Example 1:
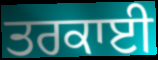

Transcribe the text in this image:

ਤਰਕਾਈ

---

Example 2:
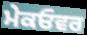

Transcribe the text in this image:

ਮੇਕਓਵਰ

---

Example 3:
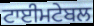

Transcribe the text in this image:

ਟਾਈਮਟੇਬਲ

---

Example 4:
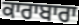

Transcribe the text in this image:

ਕਾਰਾਬਾਰਾ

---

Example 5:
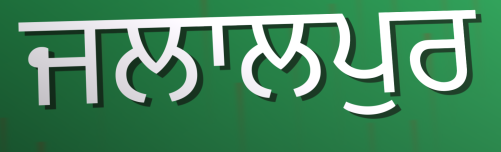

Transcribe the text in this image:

ਜਲਾਲਪੁਰ